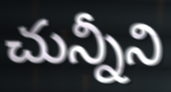
చున్నీని